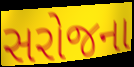
સરોજના